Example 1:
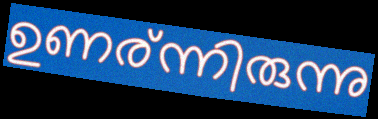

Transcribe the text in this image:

ഉണര്ന്നിരുന്നു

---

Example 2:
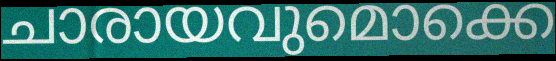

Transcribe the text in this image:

ചാരായവുമൊക്കെ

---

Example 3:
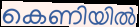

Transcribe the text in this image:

കെണിയിൽ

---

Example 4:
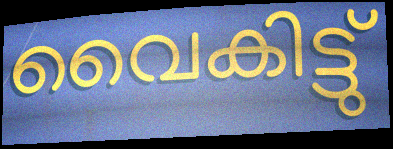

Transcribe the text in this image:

വൈകിട്ടു്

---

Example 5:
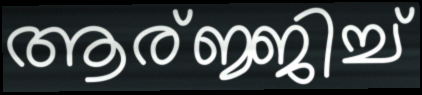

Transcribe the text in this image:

ആര്ജ്ജിച്ച്